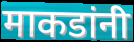
माकडांनी